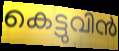
കെട്ടുവിൻ